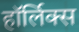
हॉर्लिक्‍स